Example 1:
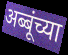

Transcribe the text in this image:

अब्बूंच्या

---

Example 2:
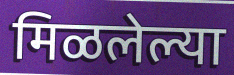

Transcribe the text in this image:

मिळलेल्या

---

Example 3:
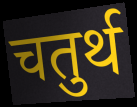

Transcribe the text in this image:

चतुर्थ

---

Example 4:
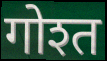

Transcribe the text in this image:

गोश्त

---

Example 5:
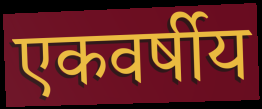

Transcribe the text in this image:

एकवर्षीय